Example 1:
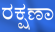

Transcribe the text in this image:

ರಕ್ಷಣಾ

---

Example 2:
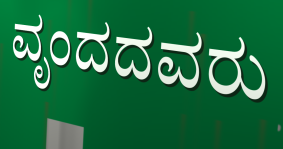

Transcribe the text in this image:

ವೃಂದದವರು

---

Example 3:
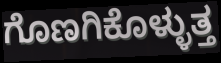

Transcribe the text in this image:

ಗೊಣಗಿಕೊಳ್ಳುತ್ತ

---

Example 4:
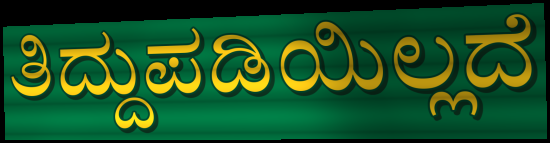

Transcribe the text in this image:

ತಿದ್ದುಪಡಿಯಿಲ್ಲದೆ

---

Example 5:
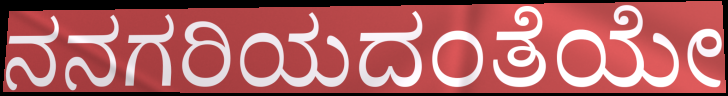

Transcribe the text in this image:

ನನಗರಿಯದಂತೆಯೇ